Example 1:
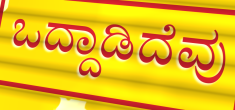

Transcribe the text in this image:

ಒದ್ದಾಡಿದೆವು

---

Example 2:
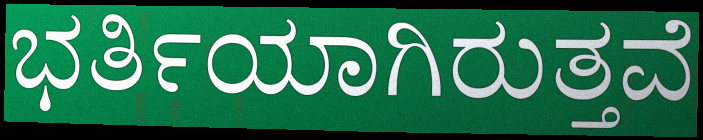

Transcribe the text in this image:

ಭರ್ತಿಯಾಗಿರುತ್ತವೆ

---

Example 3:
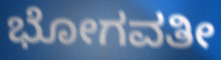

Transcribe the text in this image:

ಭೋಗವತೀ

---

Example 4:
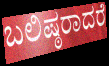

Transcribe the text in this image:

ಬಲಿಷ್ಠರಾದರೆ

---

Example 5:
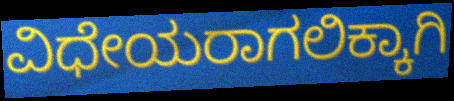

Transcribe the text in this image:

ವಿಧೇಯರಾಗಲಿಕ್ಕಾಗಿ